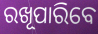
ରଖୂପାରିବେ